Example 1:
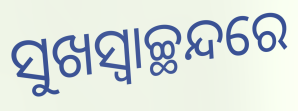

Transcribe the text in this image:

ସୁଖସ୍ୱାଚ୍ଛନ୍ଦରେ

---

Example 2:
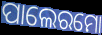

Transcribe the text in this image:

ପାଲେରମୋ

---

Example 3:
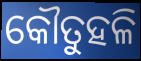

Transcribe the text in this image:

କୌତୁହଳି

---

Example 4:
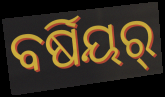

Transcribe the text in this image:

ବର୍ଷିୟର୍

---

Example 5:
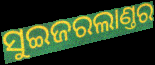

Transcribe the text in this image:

ସୁଇଜରଲାଣ୍ତର